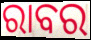
ରାବର